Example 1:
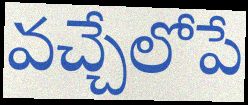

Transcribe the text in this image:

వచ్చేలోపే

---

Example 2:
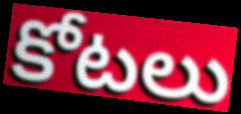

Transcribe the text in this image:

కోటలు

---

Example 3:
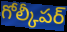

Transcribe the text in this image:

గోల్కీపర్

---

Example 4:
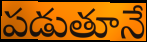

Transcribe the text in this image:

పడుతూనే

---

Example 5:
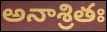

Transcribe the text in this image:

అనాశ్రితః